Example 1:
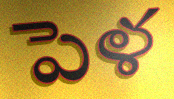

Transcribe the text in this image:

పెళ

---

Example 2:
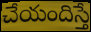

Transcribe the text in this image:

చేయందిస్తే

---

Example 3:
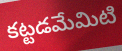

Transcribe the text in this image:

కట్టడమేమిటి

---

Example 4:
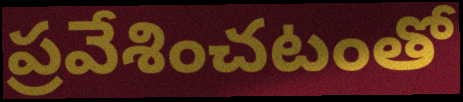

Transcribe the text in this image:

ప్రవేశించటంతో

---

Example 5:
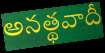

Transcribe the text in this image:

అనత్థవాదీ